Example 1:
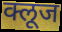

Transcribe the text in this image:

क्लूज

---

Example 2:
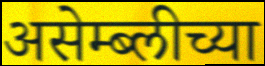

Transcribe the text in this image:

असेम्ब्लीच्या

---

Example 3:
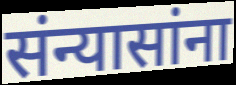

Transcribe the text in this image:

संन्यासांना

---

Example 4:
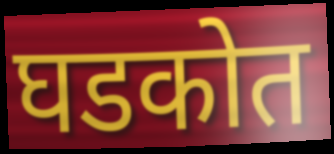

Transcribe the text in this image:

घडकोत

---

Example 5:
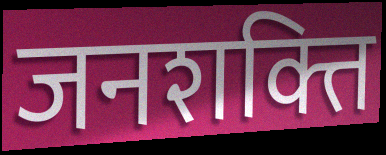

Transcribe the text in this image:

जनशक्ति